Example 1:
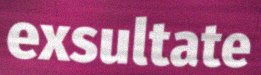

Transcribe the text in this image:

exsultate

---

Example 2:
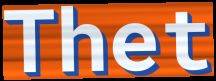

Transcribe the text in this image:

Thet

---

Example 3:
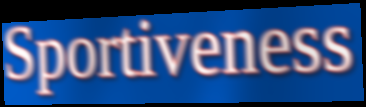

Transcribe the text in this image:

Sportiveness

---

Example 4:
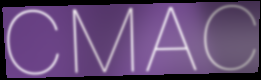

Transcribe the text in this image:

CMAC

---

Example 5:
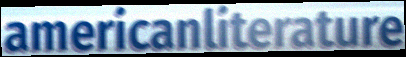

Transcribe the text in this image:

americanliterature